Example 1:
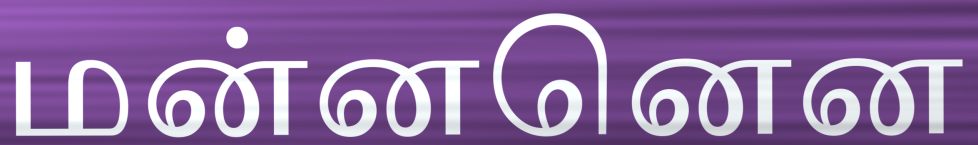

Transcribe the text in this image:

மன்னனென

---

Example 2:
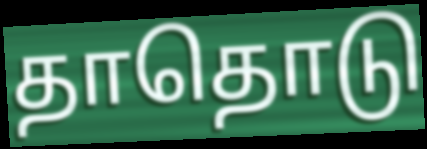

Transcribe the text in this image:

தாதொடு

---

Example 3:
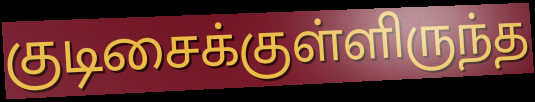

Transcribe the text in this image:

குடிசைக்குள்ளிருந்த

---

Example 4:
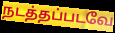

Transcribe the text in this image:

நடத்தப்படவே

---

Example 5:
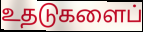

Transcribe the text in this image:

உதடுகளைப்